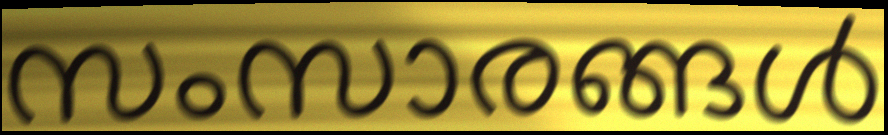
സംസാരങ്ങൾ